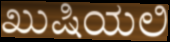
ಖುಷಿಯಲಿ